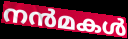
നൻമകൾ